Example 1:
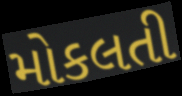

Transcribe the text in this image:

મોકલતી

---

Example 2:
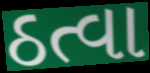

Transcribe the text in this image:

ઠત્વા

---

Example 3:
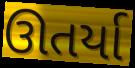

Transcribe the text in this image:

ઊતર્યા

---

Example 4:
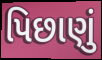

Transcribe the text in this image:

પિછાણું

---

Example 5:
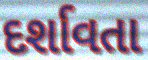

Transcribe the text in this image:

દર્શાવતા